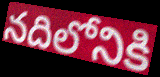
నదిలోనికి